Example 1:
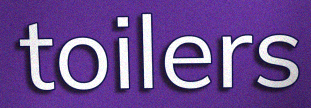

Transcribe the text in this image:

toilers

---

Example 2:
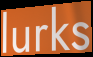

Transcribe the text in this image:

lurks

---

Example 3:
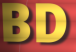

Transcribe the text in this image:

BD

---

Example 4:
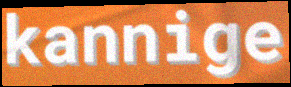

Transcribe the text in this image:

kannige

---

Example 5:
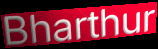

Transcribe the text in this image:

Bharthur